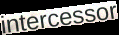
intercessor